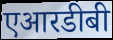
एआरडीबी